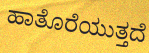
ಹಾತೊರೆಯುತ್ತದೆ